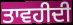
ਤਾਵਹੀਦੀ